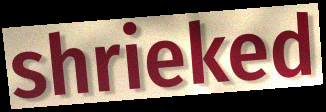
shrieked